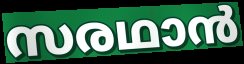
സരഥാൻ